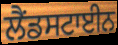
ਲੈਂਡਸਟਾਈਨ